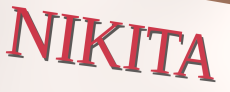
NIKITA